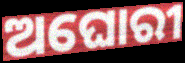
ଅଘୋରୀ